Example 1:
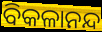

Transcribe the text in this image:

ବିକଳାନନ୍ଦ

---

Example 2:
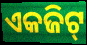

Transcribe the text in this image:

ଏକଜିଟ୍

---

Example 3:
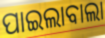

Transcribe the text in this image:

ପାଇଲାବାଲା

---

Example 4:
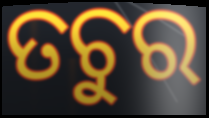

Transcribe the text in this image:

ତଚୁର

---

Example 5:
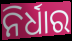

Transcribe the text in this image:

ନିର୍ଧାର